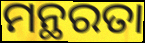
ମନ୍ଥରତା